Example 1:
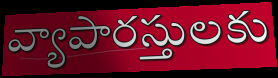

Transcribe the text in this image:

వ్యాపారస్తులకు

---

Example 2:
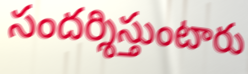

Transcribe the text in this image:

సందర్శిస్తుంటారు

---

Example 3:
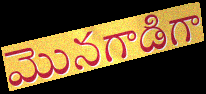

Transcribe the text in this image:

మొనగాడిగా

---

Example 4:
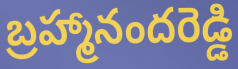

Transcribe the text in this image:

బ్రహ్మానందరెడ్డి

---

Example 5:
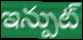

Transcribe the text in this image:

ఇన్పుట్